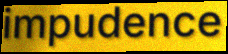
impudence